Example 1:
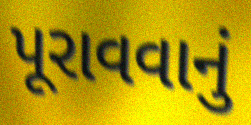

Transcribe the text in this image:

પૂરાવવાનું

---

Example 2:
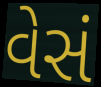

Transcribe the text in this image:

વેસં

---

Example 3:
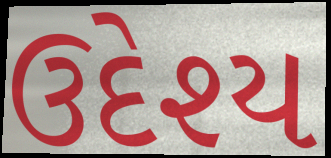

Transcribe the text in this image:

ઉદેશ્ય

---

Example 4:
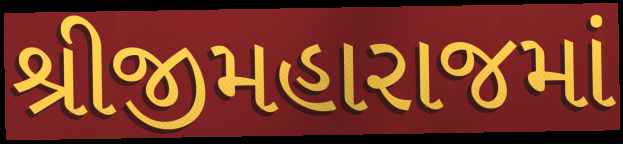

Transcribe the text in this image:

શ્રીજીમહારાજમાં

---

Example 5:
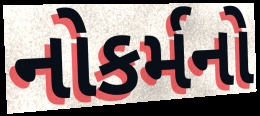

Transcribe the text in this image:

નોકર્મનો